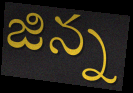
జిన్న